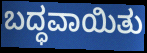
ಬದ್ಧವಾಯಿತು